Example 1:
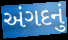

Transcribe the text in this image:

અંગદનું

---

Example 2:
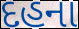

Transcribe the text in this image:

દહના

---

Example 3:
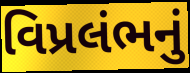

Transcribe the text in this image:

વિપ્રલંભનું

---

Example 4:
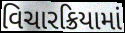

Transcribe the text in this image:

વિચારક્રિયામાં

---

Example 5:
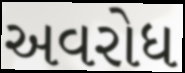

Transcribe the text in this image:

અવરોધ